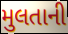
મુલતાની